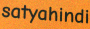
satyahindi